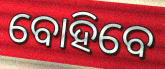
ବୋହିବେ